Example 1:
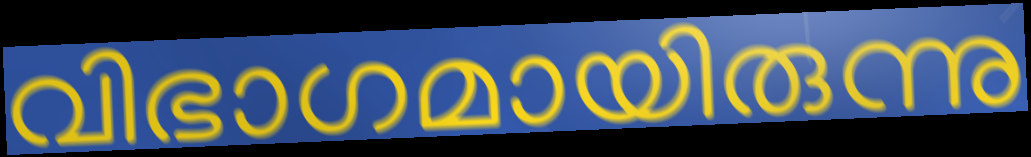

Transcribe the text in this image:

വിഭാഗമായിരുന്നു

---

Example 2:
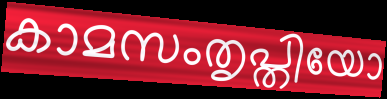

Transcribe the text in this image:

കാമസംതൃപ്തിയോ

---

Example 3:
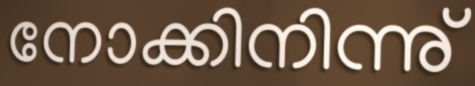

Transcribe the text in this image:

നോക്കിനിന്നു്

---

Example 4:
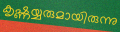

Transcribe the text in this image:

കൃഷ്ണയ്യരുമായിരുന്നു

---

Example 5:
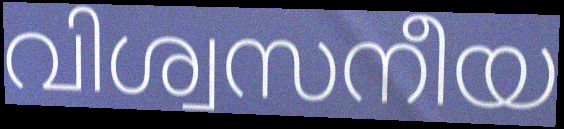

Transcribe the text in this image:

വിശ്വസനീയ